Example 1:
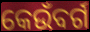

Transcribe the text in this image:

କେଉଁବର୍ଗ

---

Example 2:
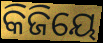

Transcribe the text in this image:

କିଜିୟେ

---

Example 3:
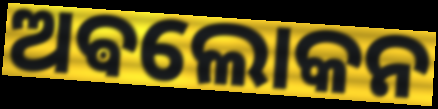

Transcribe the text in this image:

ଅଵଲୋକନ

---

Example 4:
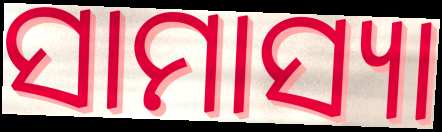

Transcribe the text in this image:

ସାମାସ୍ୟା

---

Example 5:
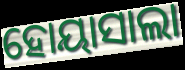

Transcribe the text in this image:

ହୋୟାସାଲା